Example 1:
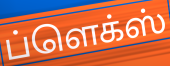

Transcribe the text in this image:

ப்ளெக்ஸ்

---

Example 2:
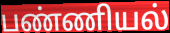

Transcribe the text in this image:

பண்ணியல்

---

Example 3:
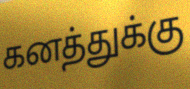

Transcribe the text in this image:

கனத்துக்கு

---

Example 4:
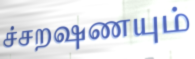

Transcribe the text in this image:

ச்சறஷணயும்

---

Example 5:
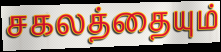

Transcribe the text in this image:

சகலத்தையும்